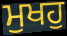
ਮੁਖਹੁ